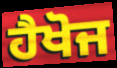
ਹੈਖੋਜ